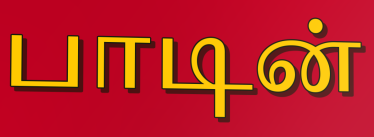
பாடின்